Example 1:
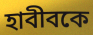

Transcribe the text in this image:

হাবীবকে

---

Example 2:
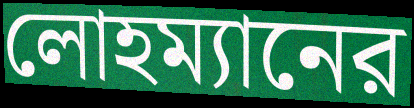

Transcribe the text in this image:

লোহম্যানের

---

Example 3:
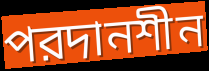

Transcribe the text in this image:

পরদানশীন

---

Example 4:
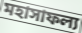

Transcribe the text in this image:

মহাসাফল্য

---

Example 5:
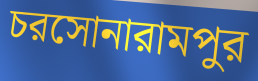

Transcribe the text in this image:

চরসোনারামপুর